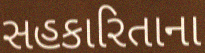
સહકારિતાના